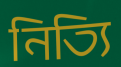
নিত্যি